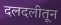
दलदलीतून